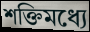
শক্তিমধ্যে